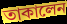
তাকালেন